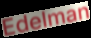
Edelman